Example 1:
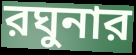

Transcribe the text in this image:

রঘুনার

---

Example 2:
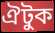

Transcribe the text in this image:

ঐটুক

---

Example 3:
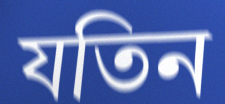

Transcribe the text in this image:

যতিন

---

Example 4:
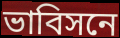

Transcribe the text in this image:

ভাবিসনে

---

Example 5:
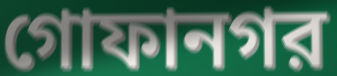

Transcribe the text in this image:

গোফানগর